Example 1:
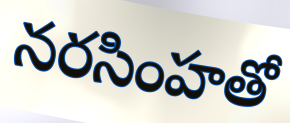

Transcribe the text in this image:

నరసింహతో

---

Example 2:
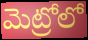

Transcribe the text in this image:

మెట్రోలో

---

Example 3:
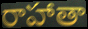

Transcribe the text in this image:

రాహాతా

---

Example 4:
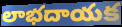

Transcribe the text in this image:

లాభదాయక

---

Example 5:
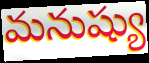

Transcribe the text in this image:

మనుష్యు